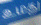
உமது